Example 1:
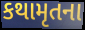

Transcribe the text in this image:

કથામૃતના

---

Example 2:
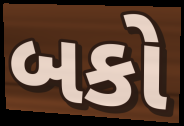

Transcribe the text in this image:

બકો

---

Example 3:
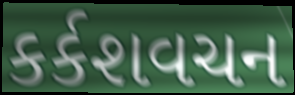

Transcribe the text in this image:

કર્કશવચન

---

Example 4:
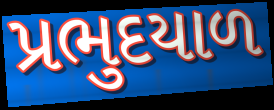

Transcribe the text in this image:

પ્રભુદયાળ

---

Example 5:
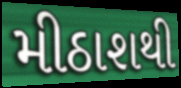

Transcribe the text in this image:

મીઠાશથી